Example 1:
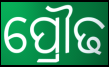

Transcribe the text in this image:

ପ୍ରୌଢ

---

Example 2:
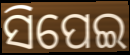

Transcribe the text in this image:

ସିପେଇ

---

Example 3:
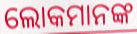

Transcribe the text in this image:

ଲୋକମାନଙ୍କ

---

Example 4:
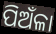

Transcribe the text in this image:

ପିଅଁଳା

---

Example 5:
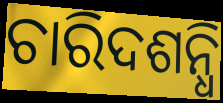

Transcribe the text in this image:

ଚାରିଦଶନ୍ଧି